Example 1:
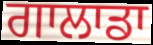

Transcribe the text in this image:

ਗਾਲਾਡਾ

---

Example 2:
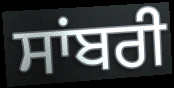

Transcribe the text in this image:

ਸਾਂਬਰੀ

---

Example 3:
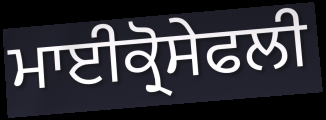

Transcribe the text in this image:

ਮਾਈਕ੍ਰੋਸੇਫਲੀ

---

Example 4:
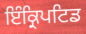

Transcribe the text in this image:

ਇੰਕ੍ਰਿਪਟਿਡ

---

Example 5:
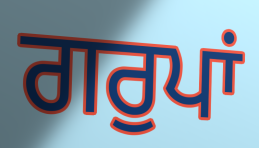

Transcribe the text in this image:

ਗਰੁਪਾਂ